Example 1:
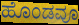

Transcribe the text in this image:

ಹೊಂಡವೂ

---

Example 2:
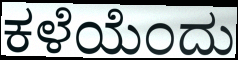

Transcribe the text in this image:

ಕಳೆಯೆಂದು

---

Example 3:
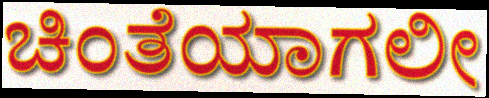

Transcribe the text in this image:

ಚಿಂತೆಯಾಗಲೀ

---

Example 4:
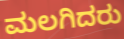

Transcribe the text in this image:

ಮಲಗಿದರು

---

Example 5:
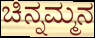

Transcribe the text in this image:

ಚಿನ್ನಮ್ಮನ